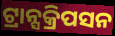
ଟ୍ରାନ୍ସକ୍ରିପସନ